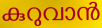
കുറുവാൻ